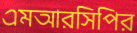
এমআরসিপির